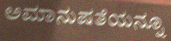
ಅಮಾನುಷತೆಯನ್ನೂ